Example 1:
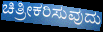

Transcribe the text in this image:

ಚಿತ್ರೀಕರಿಸುವುದು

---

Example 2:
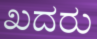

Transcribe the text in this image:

ಖದರು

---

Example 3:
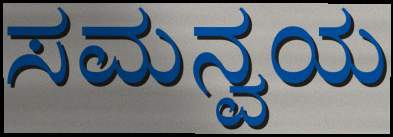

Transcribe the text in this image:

ಸಮನ್ವಯ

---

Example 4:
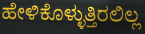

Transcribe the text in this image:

ಹೇಳಿಕೊಳ್ಳುತ್ತಿರಲಿಲ್ಲ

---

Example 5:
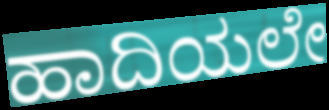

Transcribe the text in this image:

ಹಾದಿಯಲೇ